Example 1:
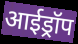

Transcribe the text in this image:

आईड्रॉप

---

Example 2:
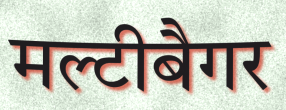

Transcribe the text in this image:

मल्‍टीबैगर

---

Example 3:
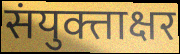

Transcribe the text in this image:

संयुक्ताक्षर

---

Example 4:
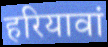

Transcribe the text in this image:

हरियावां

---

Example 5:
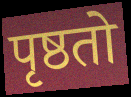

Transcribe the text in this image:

पृष्ठतो